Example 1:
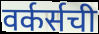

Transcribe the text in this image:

वर्कर्सची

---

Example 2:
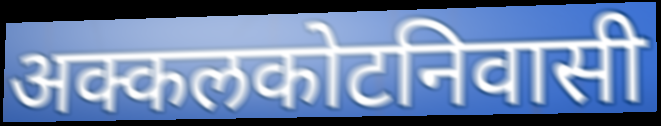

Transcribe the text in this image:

अक्कलकोटनिवासी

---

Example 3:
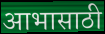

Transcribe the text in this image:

आभासाठी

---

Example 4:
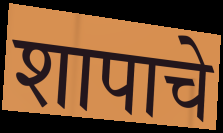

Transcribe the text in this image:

शापाचे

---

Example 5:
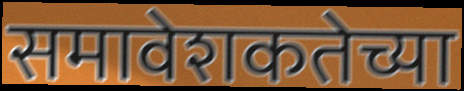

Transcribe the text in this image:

समावेशकतेच्या